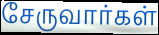
சேருவார்கள்